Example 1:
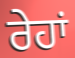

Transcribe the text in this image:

ਰੇਹਾਂ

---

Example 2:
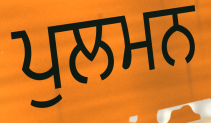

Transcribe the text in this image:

ਪੁਲਮਨ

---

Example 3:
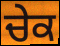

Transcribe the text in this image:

ਚੇਕ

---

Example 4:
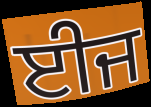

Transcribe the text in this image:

ਈਜ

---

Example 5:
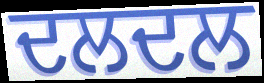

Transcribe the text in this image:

ਦਲਦਲ